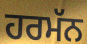
ਹਰਮੱਨ